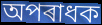
অপৰাধক